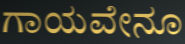
ಗಾಯವೇನೂ